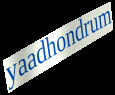
yaadhondrum